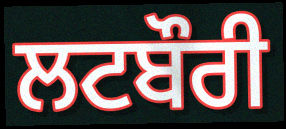
ਲਟਬੌਰੀ